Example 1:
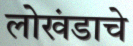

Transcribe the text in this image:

लोखंडाचे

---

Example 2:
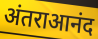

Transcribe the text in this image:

अंतराआनंद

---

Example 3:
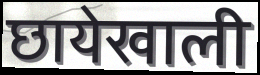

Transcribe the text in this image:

छायेखाली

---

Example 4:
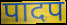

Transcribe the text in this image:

पादप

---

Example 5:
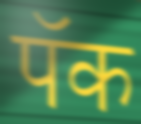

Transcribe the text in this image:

पॅक